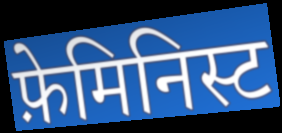
फ़ेमिनिस्ट